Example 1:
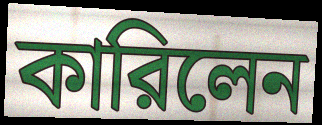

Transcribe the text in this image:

কারিলেন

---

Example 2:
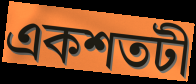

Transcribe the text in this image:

একশতটী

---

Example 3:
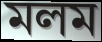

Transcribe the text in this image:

মলম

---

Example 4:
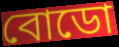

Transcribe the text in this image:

বোডো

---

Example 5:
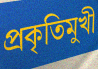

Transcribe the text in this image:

প্রকৃতিমুখী